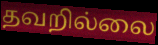
தவறில்லை